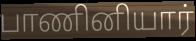
பாணினியார்